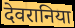
देवरानिया